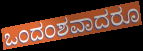
ಒಂದಂಶವಾದರೂ